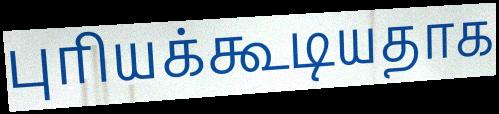
புரியக்கூடியதாக